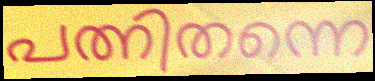
പത്നിതന്നെ